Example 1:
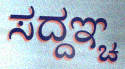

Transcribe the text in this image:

ಸದ್ದಞ್ಚ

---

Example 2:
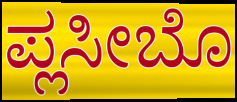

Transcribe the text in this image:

ಪ್ಲಸೀಬೊ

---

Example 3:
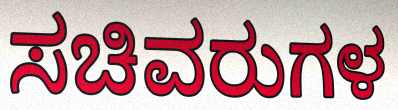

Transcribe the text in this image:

ಸಚಿವರುಗಳ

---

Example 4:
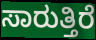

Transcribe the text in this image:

ಸಾರುತ್ತಿರೆ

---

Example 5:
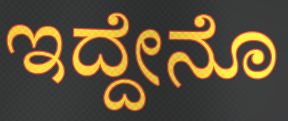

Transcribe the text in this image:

ಇದ್ದೇನೊ